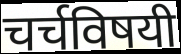
चर्चविषयी